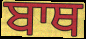
ਬਾਥ